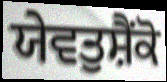
ਯੇਵਤੁਸ਼ੈਂਕੋ